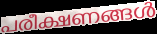
പരീക്ഷണങ്ങൾ